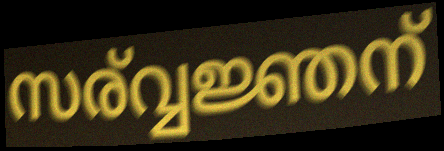
സര്വ്വജ്ഞന്